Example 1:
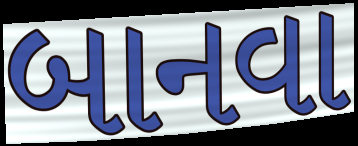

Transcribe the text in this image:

બાનવા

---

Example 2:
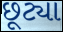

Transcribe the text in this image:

છૂટ્યા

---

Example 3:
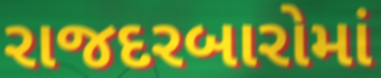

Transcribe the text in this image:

રાજદરબારોમાં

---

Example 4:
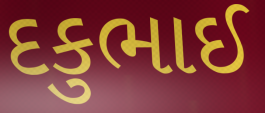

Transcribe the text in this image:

દકુભાઈ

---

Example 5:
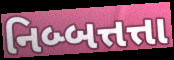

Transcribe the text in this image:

નિબ્બત્તત્તા